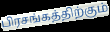
பிரசங்கத்திற்கும்